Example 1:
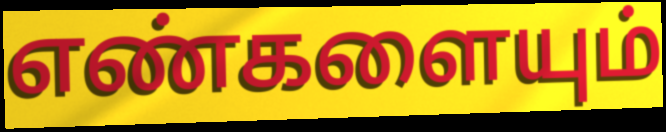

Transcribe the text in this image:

எண்களையும்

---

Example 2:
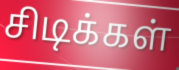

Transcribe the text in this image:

சிடிக்கள்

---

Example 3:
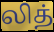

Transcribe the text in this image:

லித்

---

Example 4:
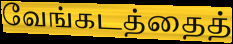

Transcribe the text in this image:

வேங்கடத்தைத்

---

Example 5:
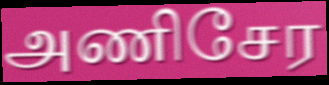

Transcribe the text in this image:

அணிசேர